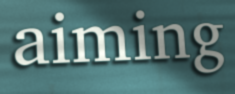
aiming